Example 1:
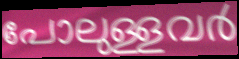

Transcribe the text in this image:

പോലുള്ളവർ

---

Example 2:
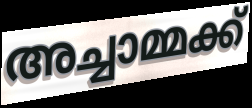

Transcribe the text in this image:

അച്ചാമ്മക്ക്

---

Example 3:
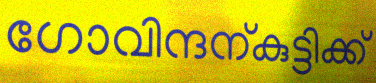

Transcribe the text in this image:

ഗോവിന്ദന്കുട്ടിക്ക്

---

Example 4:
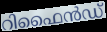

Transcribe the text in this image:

റിഫൈൻഡ്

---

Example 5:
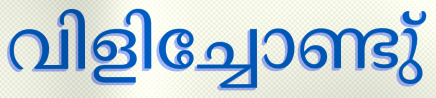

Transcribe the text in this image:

വിളിച്ചോണ്ടു്